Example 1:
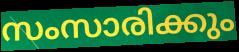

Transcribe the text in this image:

സംസാരിക്കും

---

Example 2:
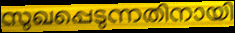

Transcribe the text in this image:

സുഖപ്പെടുന്നതിനായി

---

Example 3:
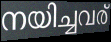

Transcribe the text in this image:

നയിച്ചവര്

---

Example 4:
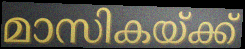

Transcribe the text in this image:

മാസികയ്ക്ക്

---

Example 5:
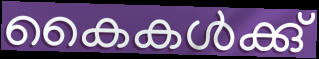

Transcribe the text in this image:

കൈകൾക്കു്